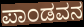
ಪಾಂಡವನ